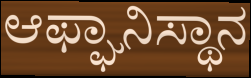
ಆಫ್ಘಾನಿಸ್ಥಾನ